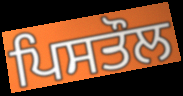
ਪਿਸਤੌਲ